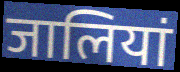
जालियां